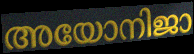
അയോനിജാ